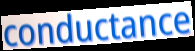
conductance